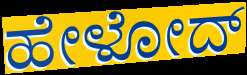
ಹೇಳೋದ್